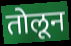
तोलून